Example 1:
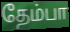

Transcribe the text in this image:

தேம்பா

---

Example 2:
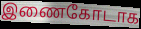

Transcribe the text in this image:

இணைகோடாக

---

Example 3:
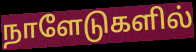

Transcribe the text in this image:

நாளேடுகளில்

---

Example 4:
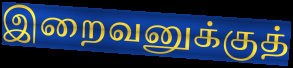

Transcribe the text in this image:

இறைவனுக்குத்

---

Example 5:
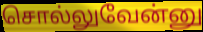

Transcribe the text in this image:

சொல்லுவேன்னு